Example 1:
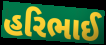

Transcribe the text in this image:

હરિભાઈ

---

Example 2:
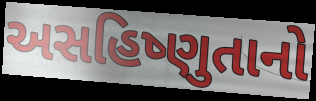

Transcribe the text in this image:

અસહિષ્ણુતાનો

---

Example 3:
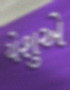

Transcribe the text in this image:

યેશુએ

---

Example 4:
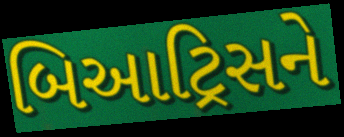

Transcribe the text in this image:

બિઆટ્રિસને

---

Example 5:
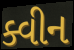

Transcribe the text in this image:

ક્વીન